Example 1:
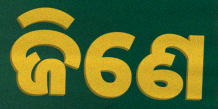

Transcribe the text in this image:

ଜିଣେ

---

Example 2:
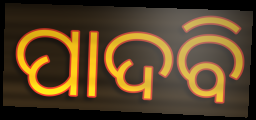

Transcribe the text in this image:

ପାଦବି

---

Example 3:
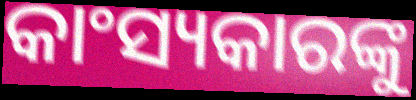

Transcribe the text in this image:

କାଂସ୍ୟକାରଙ୍କୁ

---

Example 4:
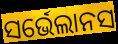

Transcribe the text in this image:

ସର୍ଭେଲାନସ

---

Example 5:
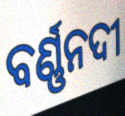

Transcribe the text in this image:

ବର୍ଣ୍ଣନଦୀ